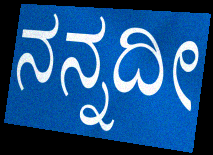
ನನ್ನದೀ